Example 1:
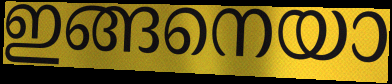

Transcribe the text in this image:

ഇങ്ങനെയാ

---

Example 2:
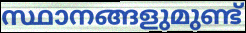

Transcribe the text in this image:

സ്ഥാനങ്ങളുമുണ്ട്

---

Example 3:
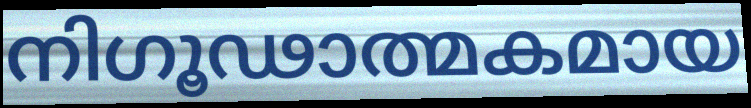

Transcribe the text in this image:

നിഗൂഢാത്മകമായ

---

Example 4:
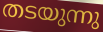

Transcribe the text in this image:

തടയുന്നു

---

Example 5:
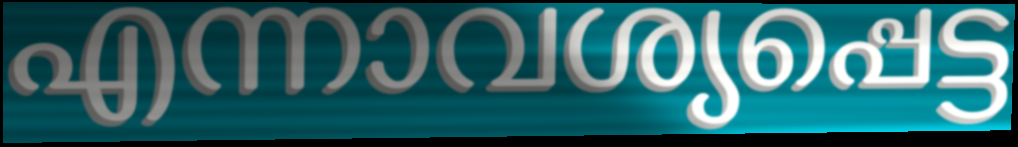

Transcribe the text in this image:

എന്നാവശ്യപ്പെട്ട